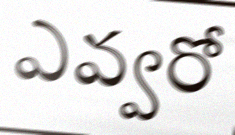
ఎవ్వరో